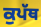
ਕੁਪੱਥ